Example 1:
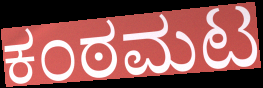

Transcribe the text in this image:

ಕಂಠಮಟ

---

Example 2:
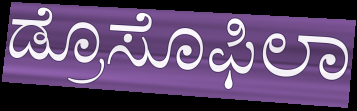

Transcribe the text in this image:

ಡ್ರೊಸೊಫಿಲಾ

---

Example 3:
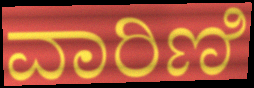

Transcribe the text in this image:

ವಾರಿಣಿ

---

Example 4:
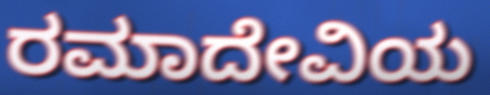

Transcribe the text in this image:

ರಮಾದೇವಿಯ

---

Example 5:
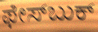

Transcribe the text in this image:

ಫೇಸ್‍ಬುಕ್